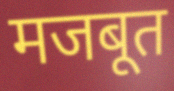
मजबूत